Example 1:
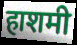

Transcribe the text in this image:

हाशमी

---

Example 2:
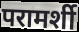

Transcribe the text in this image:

परामर्शी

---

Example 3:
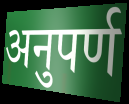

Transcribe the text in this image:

अनुपर्ण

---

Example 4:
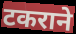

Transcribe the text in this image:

टकराने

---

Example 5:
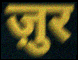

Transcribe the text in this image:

ज़ुर